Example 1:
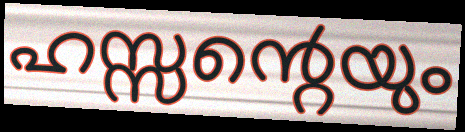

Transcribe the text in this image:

ഹസ്സന്റെയും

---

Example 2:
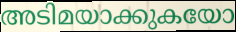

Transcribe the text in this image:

അടിമയാക്കുകയോ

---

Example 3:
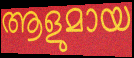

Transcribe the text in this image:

ആളുമായ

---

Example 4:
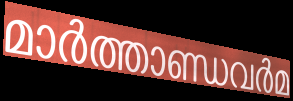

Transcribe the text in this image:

മാർത്താണ്ഡവർമ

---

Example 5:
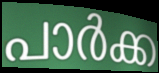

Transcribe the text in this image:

പാർക്ക